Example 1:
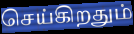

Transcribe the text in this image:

செய்கிறதும்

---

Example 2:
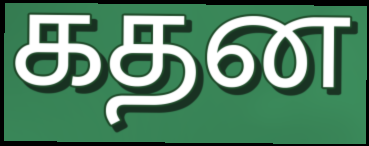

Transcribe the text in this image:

கதன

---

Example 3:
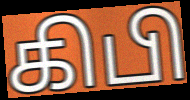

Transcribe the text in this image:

கிபி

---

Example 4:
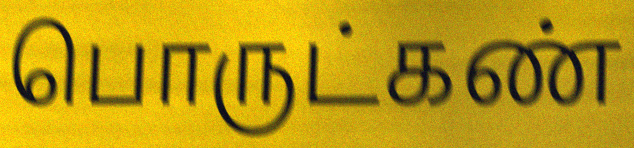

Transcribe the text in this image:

பொருட்கண்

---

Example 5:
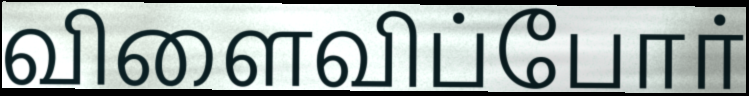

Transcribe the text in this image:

விளைவிப்போர்